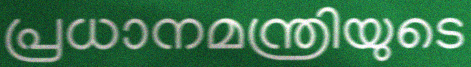
പ്രധാനമന്ത്രിയുടെ